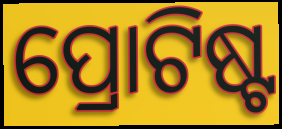
ପ୍ରୋଟିଷ୍ଟ